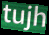
tujh